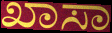
ಖಾಸಾ